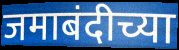
जमाबंदीच्या